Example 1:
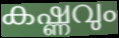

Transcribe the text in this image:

കഷ്ണവും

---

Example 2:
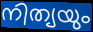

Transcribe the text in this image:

നിത്യയും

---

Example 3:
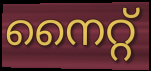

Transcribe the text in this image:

നൈറ്റ്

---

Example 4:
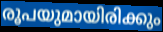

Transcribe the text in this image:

രൂപയുമായിരിക്കും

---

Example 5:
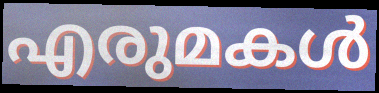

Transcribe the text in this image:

എരുമകൾ